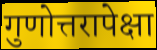
गुणोत्तरापेक्षा